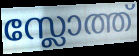
സ്ലോത്ത്